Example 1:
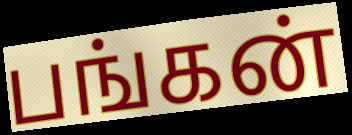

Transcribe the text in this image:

பங்கன்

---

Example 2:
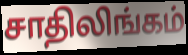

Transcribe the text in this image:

சாதிலிங்கம்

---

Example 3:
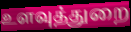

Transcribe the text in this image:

உளவுத்துறை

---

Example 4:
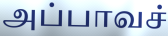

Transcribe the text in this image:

அப்பாவச்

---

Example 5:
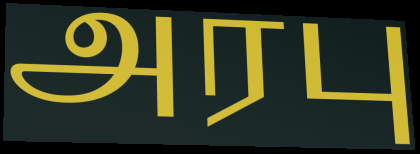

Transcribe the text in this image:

அரபு